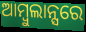
ଆମ୍ବୁଲାନ୍ସରେ